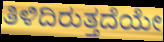
ತಿಳಿದಿರುತ್ತದೆಯೇ